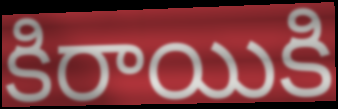
కిరాయికి